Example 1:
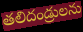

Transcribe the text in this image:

తలిదండ్రులను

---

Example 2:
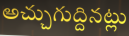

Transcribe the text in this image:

అచ్చుగుద్దినట్లు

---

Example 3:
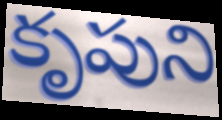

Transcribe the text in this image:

కృపుని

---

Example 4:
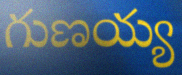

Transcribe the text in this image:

గుణయ్య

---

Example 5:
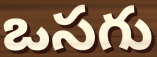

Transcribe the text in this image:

ఒసగు